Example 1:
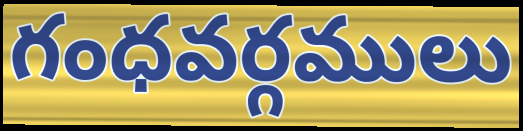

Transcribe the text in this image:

గంధవర్గములు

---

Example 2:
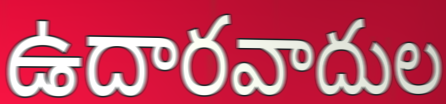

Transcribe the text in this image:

ఉదారవాదుల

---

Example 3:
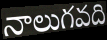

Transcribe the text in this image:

నాలుగవది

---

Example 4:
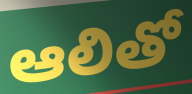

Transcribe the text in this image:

ఆలితో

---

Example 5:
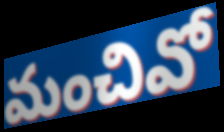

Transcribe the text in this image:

మంచివో